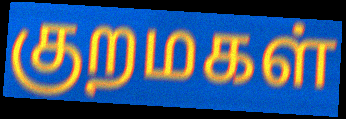
குறமகள்